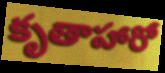
కృతాహారో